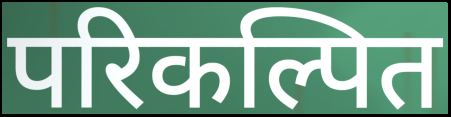
परिकल्पित